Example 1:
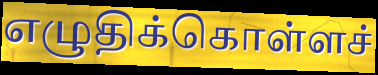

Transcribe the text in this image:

எழுதிக்கொள்ளச்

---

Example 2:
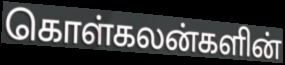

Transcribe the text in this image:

கொள்கலன்களின்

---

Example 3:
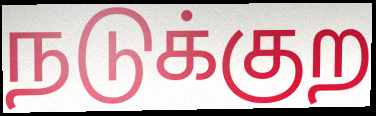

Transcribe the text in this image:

நடுக்குற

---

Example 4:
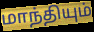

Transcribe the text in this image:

மாந்தியும்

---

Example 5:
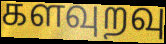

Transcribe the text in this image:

களவுறவு